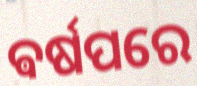
ଵର୍ଷପରେ